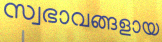
സ്വഭാവങ്ങളായ